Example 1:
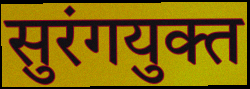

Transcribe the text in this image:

सुरंगयुक्त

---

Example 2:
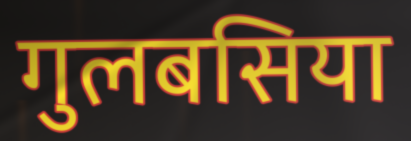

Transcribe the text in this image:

गुलबसिया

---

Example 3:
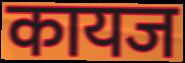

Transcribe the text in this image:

कायज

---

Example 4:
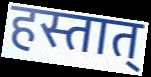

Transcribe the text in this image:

हस्तात्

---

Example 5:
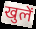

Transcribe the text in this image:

खुलें